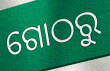
ଗୋଠରୁ